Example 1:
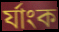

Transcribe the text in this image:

র্যাংক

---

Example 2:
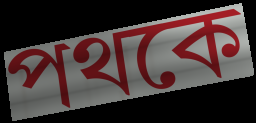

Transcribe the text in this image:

পথকে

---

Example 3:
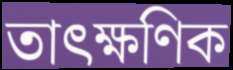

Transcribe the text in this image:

তাৎক্ষণিক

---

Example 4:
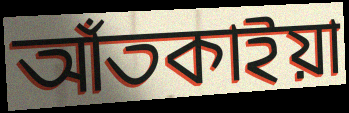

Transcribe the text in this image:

আঁতকাইয়া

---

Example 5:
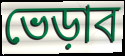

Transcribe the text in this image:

ভেড়াব